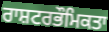
ਰਾਸ਼ਟਰਭੌਮਿਕਤਾ